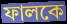
ফালকে